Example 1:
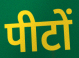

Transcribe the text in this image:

पीटों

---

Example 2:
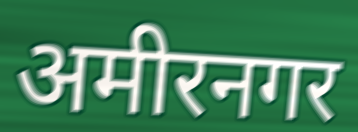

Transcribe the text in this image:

अमीरनगर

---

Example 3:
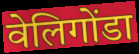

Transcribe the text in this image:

वेलिगोंडा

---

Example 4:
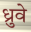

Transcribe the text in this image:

ध्रुवे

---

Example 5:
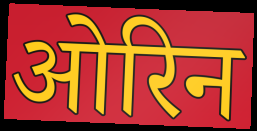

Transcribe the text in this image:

ओरिन